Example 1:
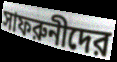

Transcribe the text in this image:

সাফরুনীদের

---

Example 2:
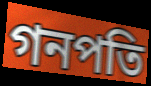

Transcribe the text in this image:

গনপতি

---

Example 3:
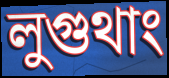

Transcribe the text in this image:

লুগুথাং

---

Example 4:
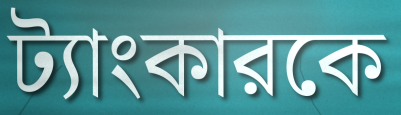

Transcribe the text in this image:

ট্যাংকারকে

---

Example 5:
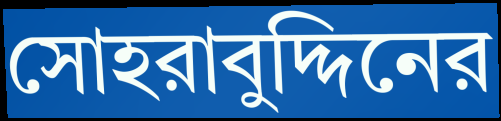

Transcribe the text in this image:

সোহরাবুদ্দিনের